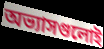
অভ্যাসগুলোই